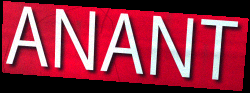
ANANT